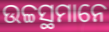
ଉଚ୍ଚସ୍ଥମାନେ